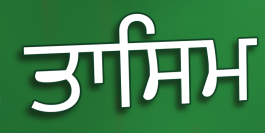
ਤਾਸਿਮ